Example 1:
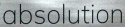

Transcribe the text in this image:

absolution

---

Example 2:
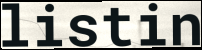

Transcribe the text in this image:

listin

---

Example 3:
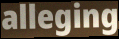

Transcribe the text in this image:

alleging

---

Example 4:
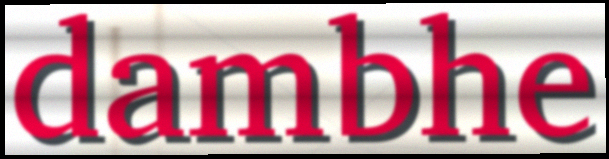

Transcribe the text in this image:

dambhe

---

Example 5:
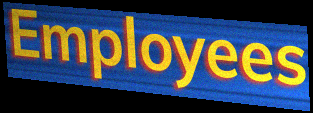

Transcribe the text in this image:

Employees